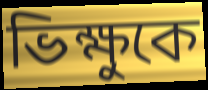
ভিক্ষুকে